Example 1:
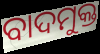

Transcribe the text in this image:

ବାଦମୁକ୍ତ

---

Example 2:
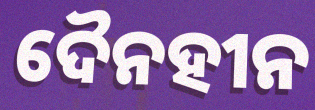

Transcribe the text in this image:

ଦୈନହୀନ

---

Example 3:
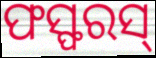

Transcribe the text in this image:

ଫସ୍ଫରସ୍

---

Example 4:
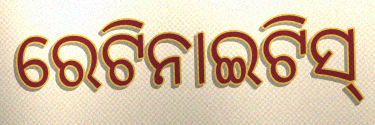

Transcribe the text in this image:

ରେଟିନାଇଟିସ୍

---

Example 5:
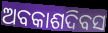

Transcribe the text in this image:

ଅବକାଶଦିବସ